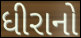
ધીરાનો